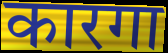
कारगा